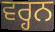
ਵਰ੍ਹਨ